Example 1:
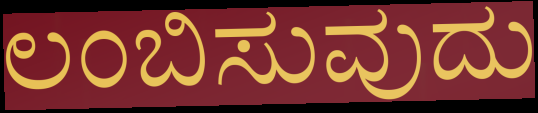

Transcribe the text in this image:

ಲಂಬಿಸುವುದು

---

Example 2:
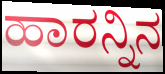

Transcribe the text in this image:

ಹಾರನ್ನಿನ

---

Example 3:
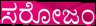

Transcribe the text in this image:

ಸರೋಜಂ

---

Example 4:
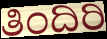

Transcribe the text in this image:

ತಿಂದಿರಿ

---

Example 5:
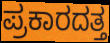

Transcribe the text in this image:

ಪ್ರಕಾರದತ್ತ